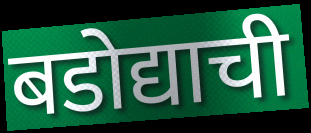
बडोद्याची